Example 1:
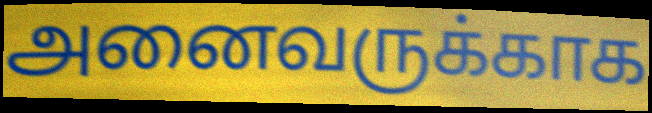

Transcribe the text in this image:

அனைவருக்காக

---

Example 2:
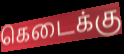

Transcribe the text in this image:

கெடைக்கு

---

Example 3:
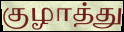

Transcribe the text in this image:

குழாத்து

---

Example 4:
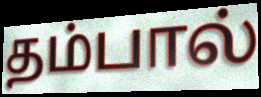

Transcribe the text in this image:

தம்பால்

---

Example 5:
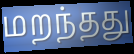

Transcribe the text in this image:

மறந்தது